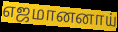
எஜமானனாய்